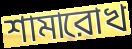
শামারোখ